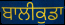
ਬਾਲੀਕੁਡਾ